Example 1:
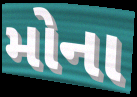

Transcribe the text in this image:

મોના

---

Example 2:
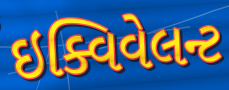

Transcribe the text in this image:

ઇક્વિવેલન્ટ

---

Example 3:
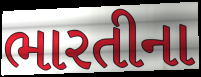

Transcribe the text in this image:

ભારતીના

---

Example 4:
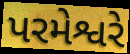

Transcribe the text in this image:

પરમેશ્વરે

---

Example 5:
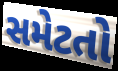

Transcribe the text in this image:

સમેટતો